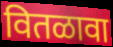
वितळावा